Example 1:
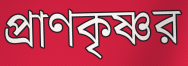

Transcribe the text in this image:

প্রাণকৃষ্ণর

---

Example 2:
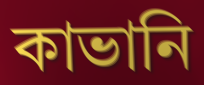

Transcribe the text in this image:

কাভানি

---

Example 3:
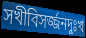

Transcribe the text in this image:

সখীবিসর্জ্জনদুঃখ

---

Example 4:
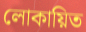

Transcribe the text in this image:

লোকায়িত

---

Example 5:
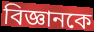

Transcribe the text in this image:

বিজ্ঞানকে